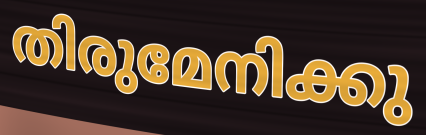
തിരുമേനിക്കു